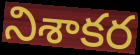
నిశాకర